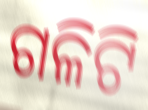
ଗଳିଟି